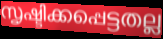
സൃഷ്ടിക്കപ്പെട്ടതല്ല